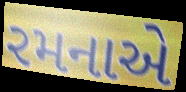
રમનાએ